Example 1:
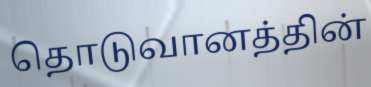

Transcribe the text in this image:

தொடுவானத்தின்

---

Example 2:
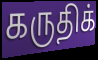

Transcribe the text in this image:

கருதிக்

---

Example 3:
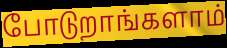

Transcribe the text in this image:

போடுறாங்களாம்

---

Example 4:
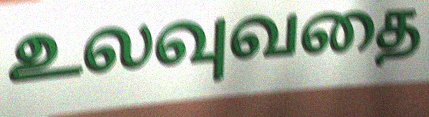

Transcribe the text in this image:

உலவுவதை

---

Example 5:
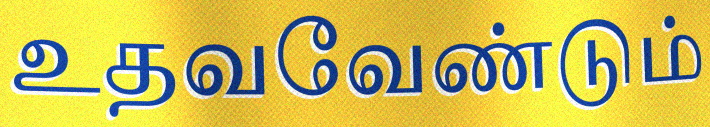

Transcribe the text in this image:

உதவவேண்டும்